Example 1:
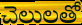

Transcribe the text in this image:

చెలులతో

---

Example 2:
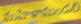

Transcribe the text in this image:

మహిళామండలి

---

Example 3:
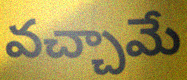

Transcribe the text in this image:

వచ్చామే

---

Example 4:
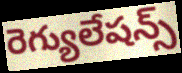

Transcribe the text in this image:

రెగ్యులేషన్స్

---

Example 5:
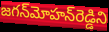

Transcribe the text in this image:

జగన్‌మోహన్‌రెడ్డిని